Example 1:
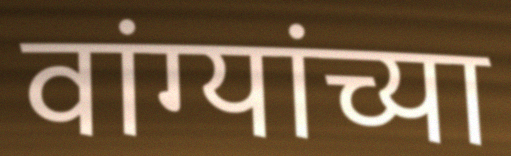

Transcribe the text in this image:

वांग्यांच्या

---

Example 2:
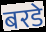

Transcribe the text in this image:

बरडे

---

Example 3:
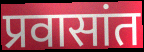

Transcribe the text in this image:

प्रवासांत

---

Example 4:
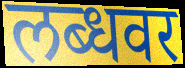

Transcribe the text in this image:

लब्धवर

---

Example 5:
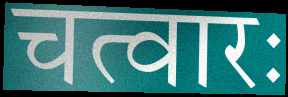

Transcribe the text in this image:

चत्वारः